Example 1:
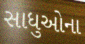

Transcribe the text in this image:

સાધુઓના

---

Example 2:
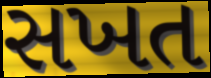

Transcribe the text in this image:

સખત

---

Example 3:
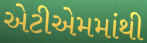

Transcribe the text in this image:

એટીએમમાંથી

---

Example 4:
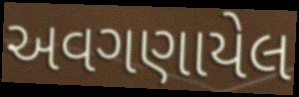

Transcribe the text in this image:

અવગણાયેલ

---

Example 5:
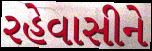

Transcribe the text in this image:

રહેવાસીને